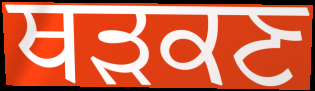
ਥੜਕਣ